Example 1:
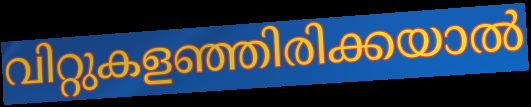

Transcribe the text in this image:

വിറ്റുകളഞ്ഞിരിക്കയാൽ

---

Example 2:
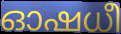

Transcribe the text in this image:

ഓഷധീ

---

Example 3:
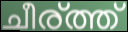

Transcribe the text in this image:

ചീര്ത്ത്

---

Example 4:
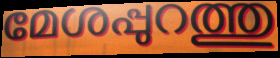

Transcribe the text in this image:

മേശപ്പുറത്തു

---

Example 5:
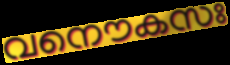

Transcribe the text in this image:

വനൌകസഃ